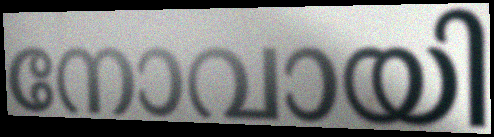
നോവായി